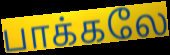
பாக்கலே